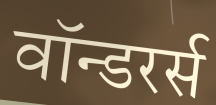
वॉन्डरर्स